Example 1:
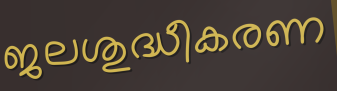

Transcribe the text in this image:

ജലശുദ്ധീകരണ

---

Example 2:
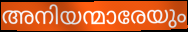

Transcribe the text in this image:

അനിയന്മാരേയും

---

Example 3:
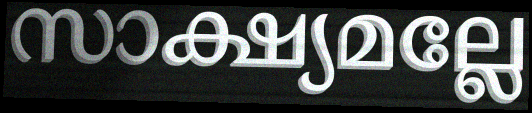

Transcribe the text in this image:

സാക്ഷ്യമല്ലേ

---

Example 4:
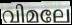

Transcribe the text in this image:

വിമലേ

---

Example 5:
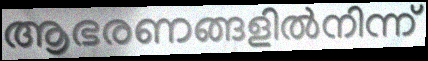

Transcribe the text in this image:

ആഭരണങ്ങളിൽനിന്ന്